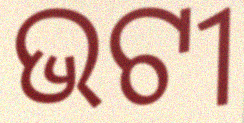
ଭଟୀ